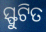
ସ୍ଫୁଟିତ